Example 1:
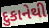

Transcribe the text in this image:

દુકાનેથી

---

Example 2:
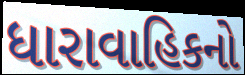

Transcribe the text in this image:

ધારાવાહિકનો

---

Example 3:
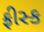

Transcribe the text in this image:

ફ્રીસ્ક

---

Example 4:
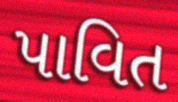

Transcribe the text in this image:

પાવિત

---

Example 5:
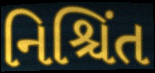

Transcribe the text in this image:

નિશ્ચિંત